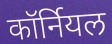
कॉर्नियल